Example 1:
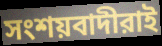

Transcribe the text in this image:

সংশয়বাদীরাই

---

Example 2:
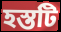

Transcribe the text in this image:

হস্তটি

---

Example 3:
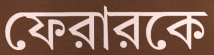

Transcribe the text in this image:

ফেরারকে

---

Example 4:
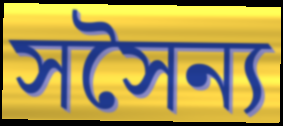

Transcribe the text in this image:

সসৈন্য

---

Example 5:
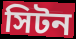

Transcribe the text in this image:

সিটন